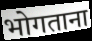
भोगताना